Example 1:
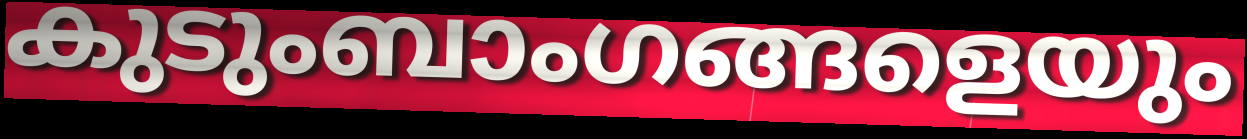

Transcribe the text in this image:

കുടുംബാംഗങ്ങളെയും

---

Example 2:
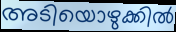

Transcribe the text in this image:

അടിയൊഴുക്കിൽ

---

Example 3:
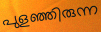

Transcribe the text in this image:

പുളഞ്ഞിരുന്ന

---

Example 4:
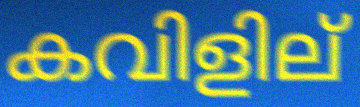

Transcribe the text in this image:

കവിളില്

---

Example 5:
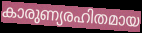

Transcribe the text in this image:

കാരുണ്യരഹിതമായ